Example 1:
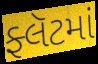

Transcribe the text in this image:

ફ્લૅટમાં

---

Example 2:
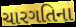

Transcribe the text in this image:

ચારગતિના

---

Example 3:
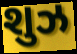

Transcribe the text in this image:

શુઝ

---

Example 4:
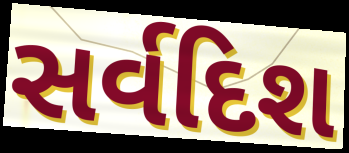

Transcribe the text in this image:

સર્વદિશ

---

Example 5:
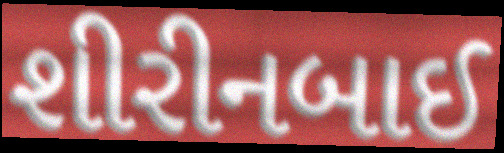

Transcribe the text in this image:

શીરીનબાઈ